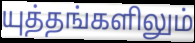
யுத்தங்களிலும்